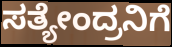
ಸತ್ಯೇಂದ್ರನಿಗೆ